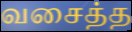
வசைத்த